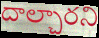
దాల్చారని